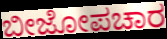
ಬೀಜೋಪಚಾರ